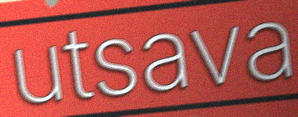
utsava